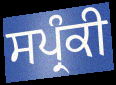
ਸਪ੍ਰੰਕੀ